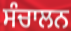
ਸੰਚਾਲਨ